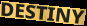
DESTINY